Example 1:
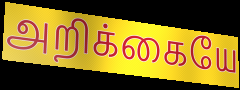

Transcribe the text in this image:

அறிக்கையே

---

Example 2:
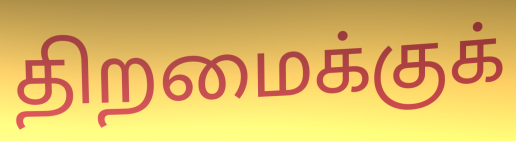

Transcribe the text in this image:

திறமைக்குக்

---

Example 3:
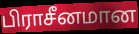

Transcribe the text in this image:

பிராசீனமான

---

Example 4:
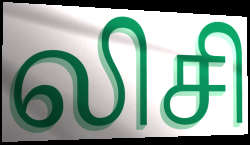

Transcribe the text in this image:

லிசி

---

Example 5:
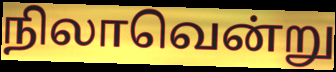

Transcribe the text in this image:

நிலாவென்று